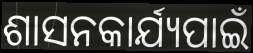
ଶାସନକାର୍ଯ୍ୟପାଇଁ